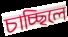
চাচ্ছিলে